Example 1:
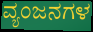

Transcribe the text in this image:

ವ್ಯಂಜನಗಳ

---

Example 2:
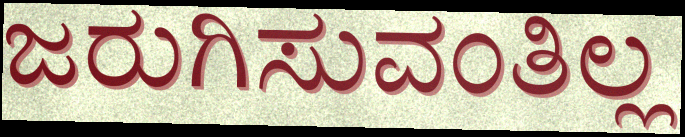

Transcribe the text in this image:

ಜರುಗಿಸುವಂತಿಲ್ಲ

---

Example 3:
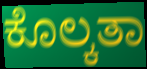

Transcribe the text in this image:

ಕೊಲ್ಕತಾ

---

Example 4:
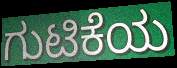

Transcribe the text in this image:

ಗುಟಿಕೆಯ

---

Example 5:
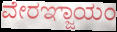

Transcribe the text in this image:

ವೇರಞ್ಜಾಯಂ